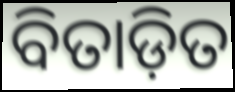
ବିତାଡ଼ିତ